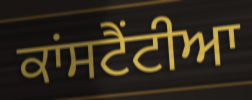
ਕਾਂਸਟੈਂਟੀਆ